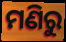
ମଣିରୁ